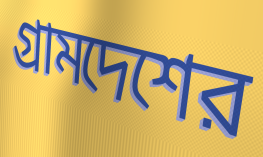
গ্রামদেশের